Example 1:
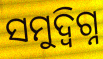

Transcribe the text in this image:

ସମୁଦ୍ବିଗ୍ନ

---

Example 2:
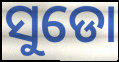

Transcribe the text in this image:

ସୁଡୋ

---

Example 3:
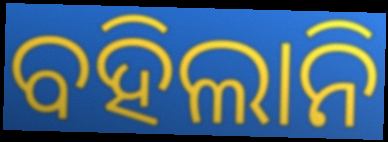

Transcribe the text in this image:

ବହିଲାନି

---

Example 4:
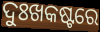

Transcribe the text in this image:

ଦୁଃଖକଷ୍ଟରେ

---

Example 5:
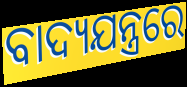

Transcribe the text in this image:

ବାଦ୍ୟଯନ୍ତ୍ରରେ